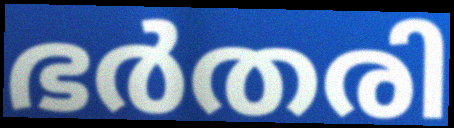
ഭർതരി